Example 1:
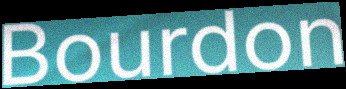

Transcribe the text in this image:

Bourdon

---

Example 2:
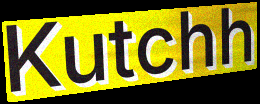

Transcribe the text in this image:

Kutchh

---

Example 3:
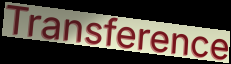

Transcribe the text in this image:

Transference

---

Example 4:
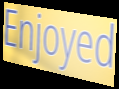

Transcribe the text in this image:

Enjoyed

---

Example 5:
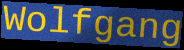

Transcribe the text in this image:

Wolfgang